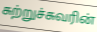
சுற்றுச்சுவரின்